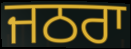
ਜਠਰਾ